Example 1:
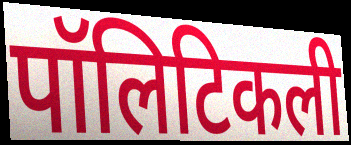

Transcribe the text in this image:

पॉलिटिकली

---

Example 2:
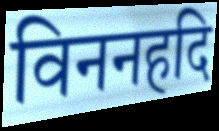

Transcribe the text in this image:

विननहदि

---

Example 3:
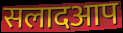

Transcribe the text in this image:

सलादआप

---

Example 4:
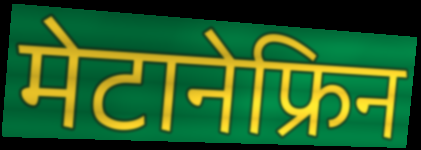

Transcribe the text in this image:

मेटानेफ्रिन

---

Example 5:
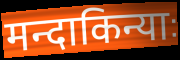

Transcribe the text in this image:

मन्दाकिन्याः